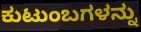
ಕುಟುಂಬಗಳನ್ನು